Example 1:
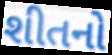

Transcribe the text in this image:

શીતનો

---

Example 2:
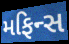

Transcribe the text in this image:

મફિન્સ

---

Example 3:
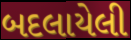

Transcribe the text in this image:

બદલાયેલી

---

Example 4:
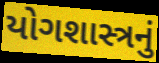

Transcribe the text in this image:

યોગશાસ્ત્રનું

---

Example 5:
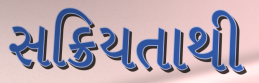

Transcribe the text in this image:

સક્રિયતાથી